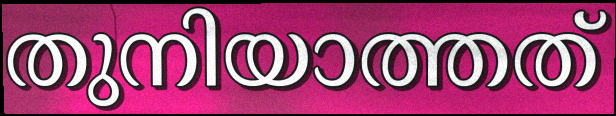
തുനിയാത്തത്